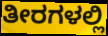
ತೀರಗಳಲ್ಲಿ